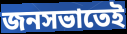
জনসভাতেই